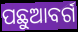
ପଛୁଆବର୍ଗ